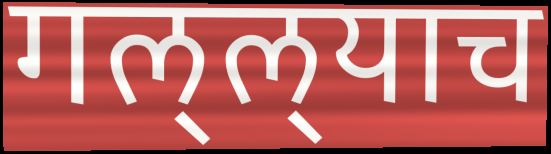
गल्ल्याच